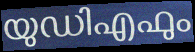
യുഡിഎഫും